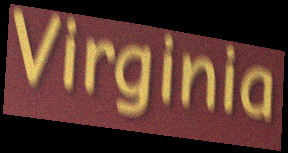
Virginia